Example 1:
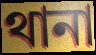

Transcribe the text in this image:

থানা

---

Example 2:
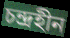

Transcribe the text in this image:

চন্দ্রহীন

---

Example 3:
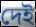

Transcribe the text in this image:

দেই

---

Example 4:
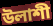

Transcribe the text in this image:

উলাশী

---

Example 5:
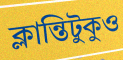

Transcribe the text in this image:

ক্লান্তিটুকুও